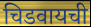
चिडवायची